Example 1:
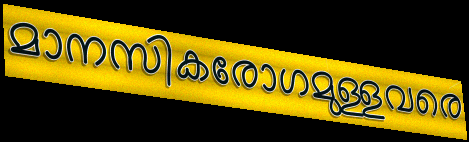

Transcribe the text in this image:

മാനസികരോഗമുള്ളവരെ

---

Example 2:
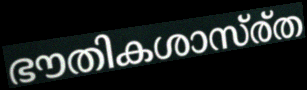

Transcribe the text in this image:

ഭൗതികശാസ്ര്ത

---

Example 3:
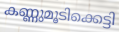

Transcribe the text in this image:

കണ്ണുമൂടിക്കെട്ടി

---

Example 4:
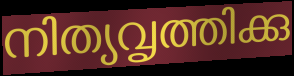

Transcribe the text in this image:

നിത്യവൃത്തിക്കു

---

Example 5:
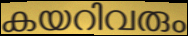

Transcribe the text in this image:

കയറിവരും